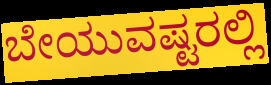
ಬೇಯುವಷ್ಟರಲ್ಲಿ